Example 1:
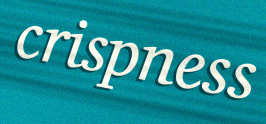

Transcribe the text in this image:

crispness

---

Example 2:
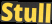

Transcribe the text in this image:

Stull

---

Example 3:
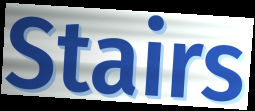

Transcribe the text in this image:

Stairs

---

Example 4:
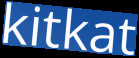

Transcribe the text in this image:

kitkat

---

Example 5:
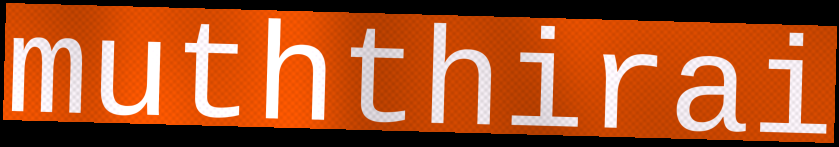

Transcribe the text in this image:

muththirai